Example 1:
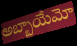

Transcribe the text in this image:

అబ్బాయేమో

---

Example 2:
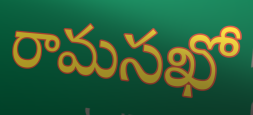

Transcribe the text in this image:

రామసఖో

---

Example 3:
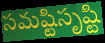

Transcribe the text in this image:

సమష్టిసృష్టి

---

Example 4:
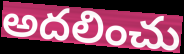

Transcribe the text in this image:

అదలించు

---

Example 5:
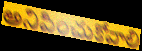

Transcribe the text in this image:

అనిపించుకోవాలి